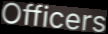
Officers